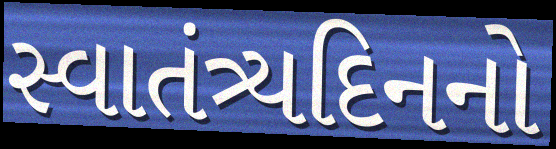
સ્વાતંત્ર્યદિનનો